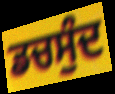
ਡਚਸੁੰਦ